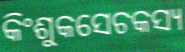
କିଂଶୁକସେଚକସ୍ୟ